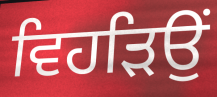
ਵਿਹੜਿਉਂ